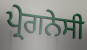
ਪ੍ਰੇਗਨੇਸੀ